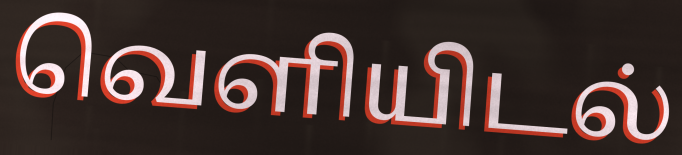
வெளியிடல்